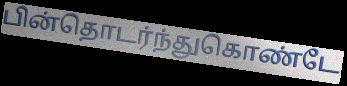
பின்தொடர்ந்துகொண்டே